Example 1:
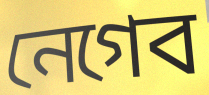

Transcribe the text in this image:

নেগেব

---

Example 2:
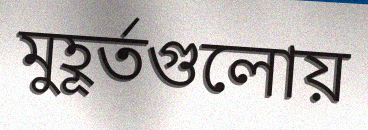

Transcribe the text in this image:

মুহূর্তগুলোয়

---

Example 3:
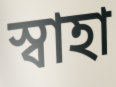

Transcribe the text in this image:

স্বাহা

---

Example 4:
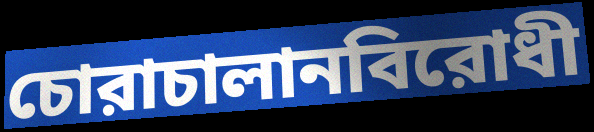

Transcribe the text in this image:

চোরাচালানবিরোধী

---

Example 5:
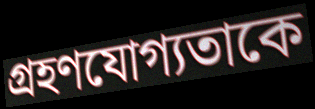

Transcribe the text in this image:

গ্রহণযোগ্যতাকে